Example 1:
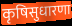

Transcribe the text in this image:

कृषिसुधारणा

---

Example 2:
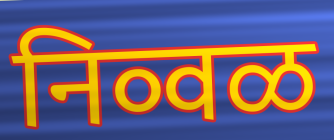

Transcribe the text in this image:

निव्‍वळ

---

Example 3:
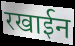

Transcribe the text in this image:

रखाईन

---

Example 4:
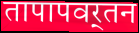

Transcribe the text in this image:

तापापवर्तन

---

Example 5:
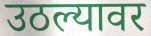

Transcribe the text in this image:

उठल्यावर